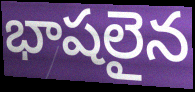
భాషలైన